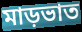
মাড়ভাত